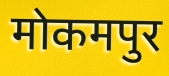
मोकमपुर